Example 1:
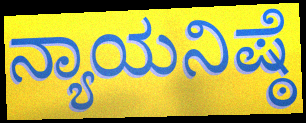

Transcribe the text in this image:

ನ್ಯಾಯನಿಷ್ಠೆ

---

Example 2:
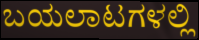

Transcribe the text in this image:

ಬಯಲಾಟಗಳಲ್ಲಿ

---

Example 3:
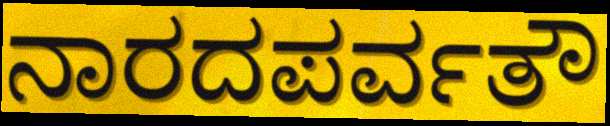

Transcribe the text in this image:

ನಾರದಪರ್ವತೌ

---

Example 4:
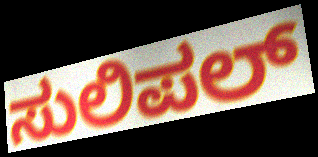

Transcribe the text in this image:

ಸುಲಿಪಲ್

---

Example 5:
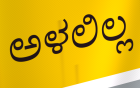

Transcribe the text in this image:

ಅಳಲಿಲ್ಲ